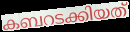
കബറടക്കിയത്